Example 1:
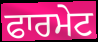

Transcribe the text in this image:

ਫਾਰਮੇਟ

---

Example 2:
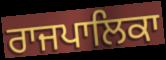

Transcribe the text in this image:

ਰਾਜਪਾਲਿਕਾ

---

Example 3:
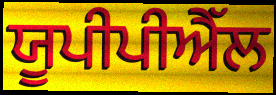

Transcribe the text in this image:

ਯੂਪੀਪੀਐੱਲ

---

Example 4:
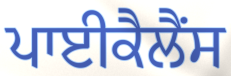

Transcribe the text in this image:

ਪਾਈਕੈਲੈਂਸ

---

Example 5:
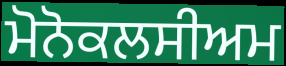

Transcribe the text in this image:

ਮੋਨੋਕਲਸੀਅਮ